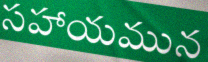
సహాయమున